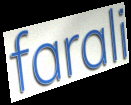
farali